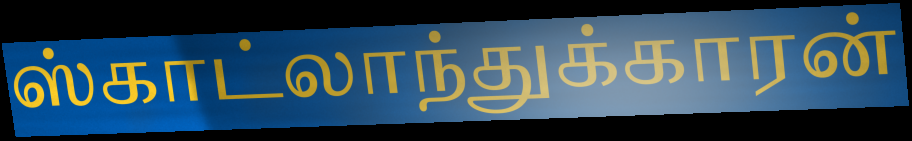
ஸ்காட்லாந்துக்காரன்